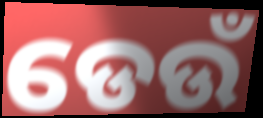
ଡେଉଁ